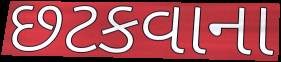
છટકવાના